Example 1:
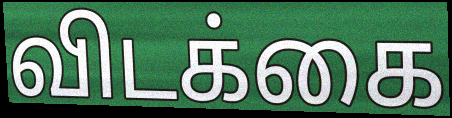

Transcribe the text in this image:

விடக்கை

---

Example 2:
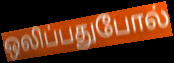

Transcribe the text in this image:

ஒலிப்பதுபோல்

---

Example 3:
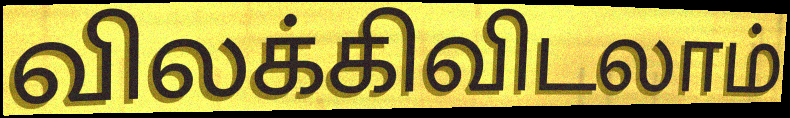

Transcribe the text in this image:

விலக்கிவிடலாம்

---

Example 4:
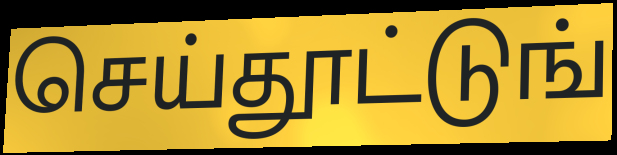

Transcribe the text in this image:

செய்தூட்டுங்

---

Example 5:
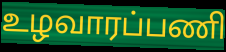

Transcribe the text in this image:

உழவாரப்பணி